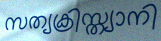
സത്യക്രിസ്ത്യാനി